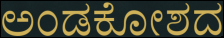
ಅಂಡಕೋಶದ